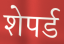
शेपर्ड